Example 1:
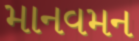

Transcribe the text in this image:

માનવમન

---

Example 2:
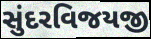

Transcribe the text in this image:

સુંદરવિજયજી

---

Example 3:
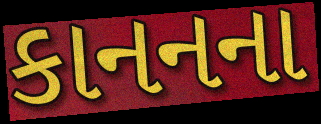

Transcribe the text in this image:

કાનનના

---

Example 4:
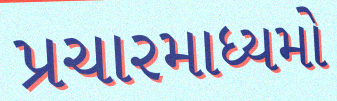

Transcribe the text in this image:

પ્રચારમાધ્યમો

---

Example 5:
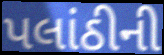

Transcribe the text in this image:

પલાંઠીની